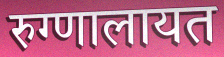
रुग्णालायत